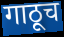
गाठूच